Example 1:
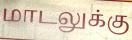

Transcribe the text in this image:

மாடலுக்கு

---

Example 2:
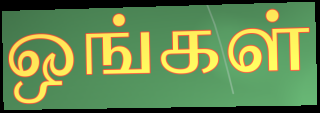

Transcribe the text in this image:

ஒங்கள்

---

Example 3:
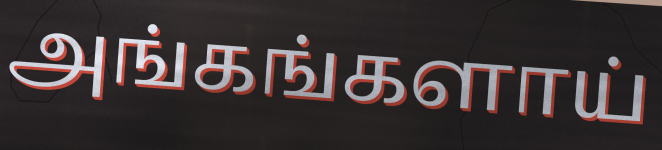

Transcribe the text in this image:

அங்கங்களாய்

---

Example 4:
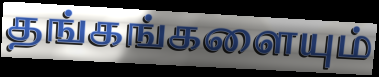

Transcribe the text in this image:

தங்கங்களையும்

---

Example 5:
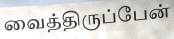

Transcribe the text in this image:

வைத்திருப்பேன்